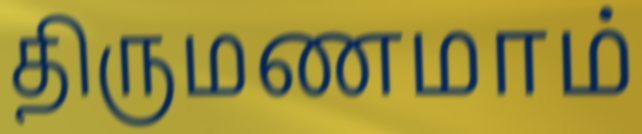
திருமணமாம்